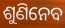
ଶୁଣିନେବ